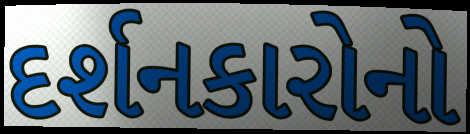
દર્શનકારોનો